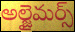
అల్జైమర్స్